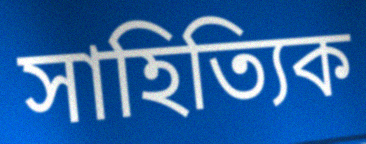
সাহিত্যিক